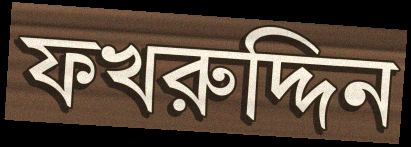
ফখরুদ্দিন